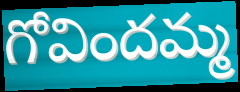
గోవిందమ్మ